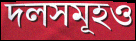
দলসমূহও